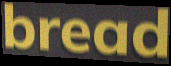
bread